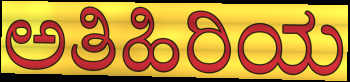
ಅತಿಹಿರಿಯ